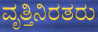
ವೃತ್ತಿನಿರತರು